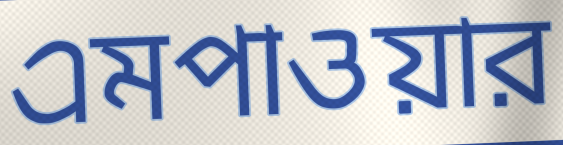
এমপাওয়ার